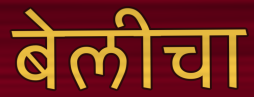
बेलीचा